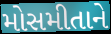
મોસમીતાને